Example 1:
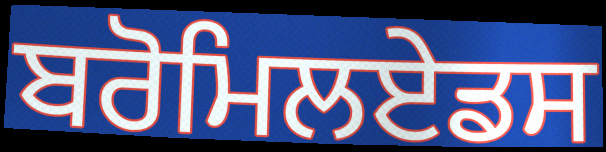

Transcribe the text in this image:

ਬਰੋਮਿਲਏਡਸ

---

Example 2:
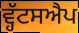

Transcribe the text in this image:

ਵ੍ਹੱਟਸਐਪ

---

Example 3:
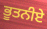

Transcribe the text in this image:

ਭੂਤਨੀਏ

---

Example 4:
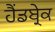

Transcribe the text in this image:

ਹੈਂਡਬ੍ਰੇਕ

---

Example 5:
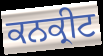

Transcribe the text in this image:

ਕਨਕ੍ਰੀਟ